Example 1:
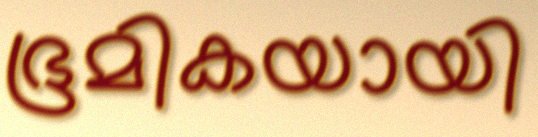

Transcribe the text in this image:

ഭൂമികയായി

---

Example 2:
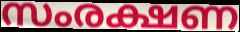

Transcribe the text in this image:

സംരക്ഷണ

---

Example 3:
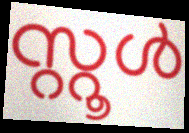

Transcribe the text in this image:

സ്റ്റൂൾ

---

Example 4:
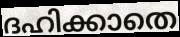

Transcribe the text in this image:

ദഹിക്കാതെ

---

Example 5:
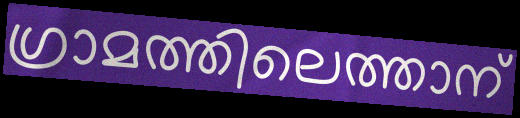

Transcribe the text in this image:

ഗ്രാമത്തിലെത്താന്